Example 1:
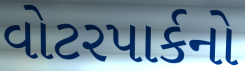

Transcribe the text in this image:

વોટરપાર્કનો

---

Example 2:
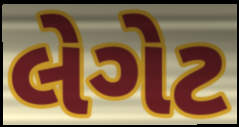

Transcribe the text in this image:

લેગેટ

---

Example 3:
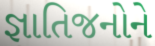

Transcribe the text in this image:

જ્ઞાતિજનોને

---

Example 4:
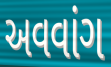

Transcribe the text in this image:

અવવાંગ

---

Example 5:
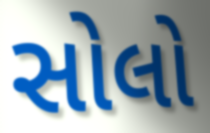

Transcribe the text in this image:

સોલો